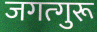
जगत्गुरू